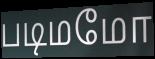
படிமமோ